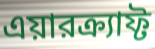
এয়ারক্র্যাফ্ট